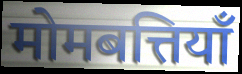
मोमबत्तियाँ